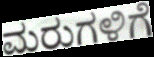
ಮರುಗಳಿಗೆ